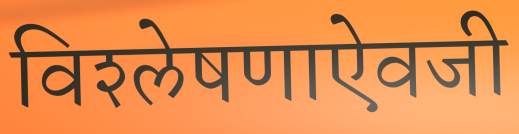
विश्लेषणाऐवजी